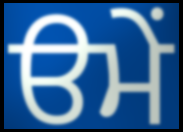
ੳਮੇਂ